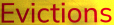
Evictions